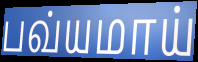
பவ்யமாய்